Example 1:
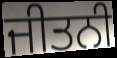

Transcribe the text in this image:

ਜੀਤਨੀ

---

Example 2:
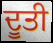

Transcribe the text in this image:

ਦੂਤੀ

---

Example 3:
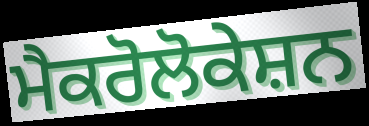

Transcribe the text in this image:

ਮੈਕਰੋਲੋਕੇਸ਼ਨ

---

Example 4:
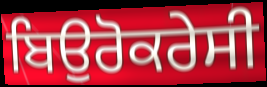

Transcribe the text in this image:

ਬਿਉਰੋਕਰੇਸੀ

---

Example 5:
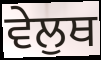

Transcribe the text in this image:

ਵੇਲੁਥ